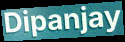
Dipanjay